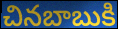
చినబాబుకి